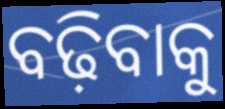
ବଢ଼ିବାକୁ